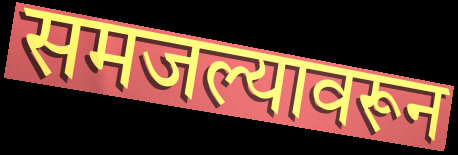
समजल्यावरून